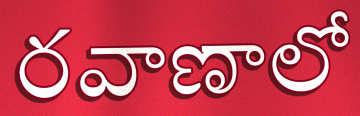
రవాణాలో